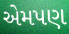
એમપણ